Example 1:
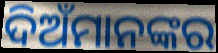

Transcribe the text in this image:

ଦିଅଁମାନଙ୍କର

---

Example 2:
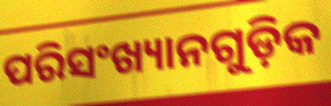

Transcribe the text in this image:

ପରିସଂଖ୍ୟାନଗୁଡ଼ିକ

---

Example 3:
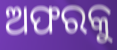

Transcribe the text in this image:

ଅଫରକୁ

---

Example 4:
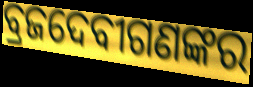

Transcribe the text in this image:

ବ୍ରଜଦେବୀଗଣଙ୍କର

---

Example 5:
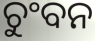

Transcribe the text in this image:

ଚୁଂବନ